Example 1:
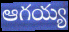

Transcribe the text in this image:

ఆగయ్య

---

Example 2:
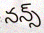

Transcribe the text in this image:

నన్స్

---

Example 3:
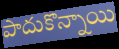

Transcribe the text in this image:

పాదుకొన్నాయి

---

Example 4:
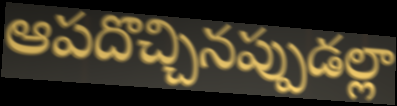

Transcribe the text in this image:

ఆపదొచ్చినప్పుడల్లా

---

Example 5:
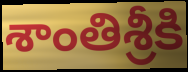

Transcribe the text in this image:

శాంతిశ్రీకి